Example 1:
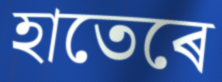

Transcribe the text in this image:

হাতেৰে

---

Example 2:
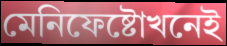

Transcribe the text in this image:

মেনিফেষ্টোখনেই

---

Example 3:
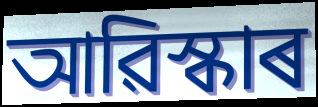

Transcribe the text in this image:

আৱিস্কাৰ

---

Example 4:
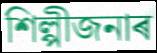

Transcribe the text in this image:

শিল্পীজনাৰ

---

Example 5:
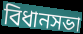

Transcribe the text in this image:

বিধানসভা